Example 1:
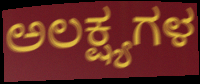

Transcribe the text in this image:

ಅಲಕ್ಷ್ಯಗಳ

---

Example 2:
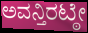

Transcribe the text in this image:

ಅವನ್ತಿರಟ್ಠೇ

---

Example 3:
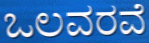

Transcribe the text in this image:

ಒಲವರವೆ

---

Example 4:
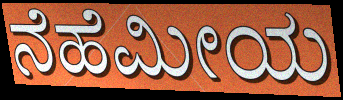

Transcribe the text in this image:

ನೆಹೆಮೀಯ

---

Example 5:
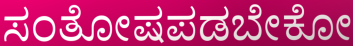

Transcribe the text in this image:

ಸಂತೋಷಪಡಬೇಕೋ